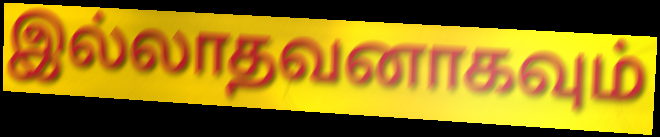
இல்லாதவனாகவும்